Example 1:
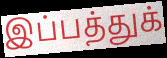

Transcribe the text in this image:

இப்பத்துக்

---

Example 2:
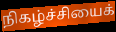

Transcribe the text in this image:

நிகழ்ச்சியைக்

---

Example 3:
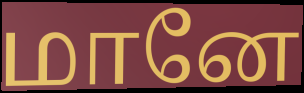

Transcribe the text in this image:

மானே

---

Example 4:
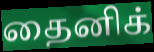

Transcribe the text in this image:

தைனிக்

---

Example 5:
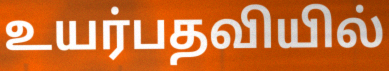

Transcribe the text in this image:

உயர்பதவியில்